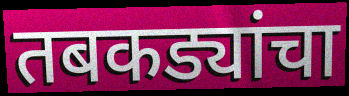
तबकड्यांचा